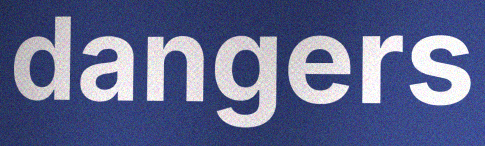
dangers